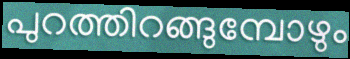
പുറത്തിറങ്ങുമ്പോഴും